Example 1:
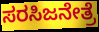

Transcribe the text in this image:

ಸರಸಿಜನೇತ್ರೆ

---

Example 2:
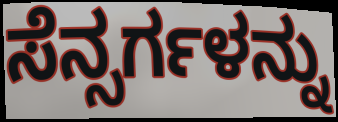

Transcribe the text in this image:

ಸೆನ್ಸರ್ಗಳನ್ನು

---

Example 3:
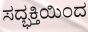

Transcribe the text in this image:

ಸದ್ಭಕ್ತಿಯಿಂದ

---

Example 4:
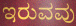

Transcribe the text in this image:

ಇರುವವು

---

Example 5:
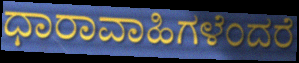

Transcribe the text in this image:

ಧಾರಾವಾಹಿಗಳೆಂದರೆ